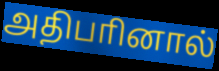
அதிபரினால்